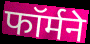
फॉर्मने